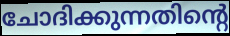
ചോദിക്കുന്നതിന്റെ